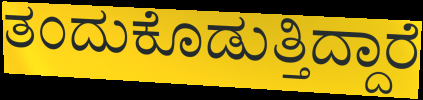
ತಂದುಕೊಡುತ್ತಿದ್ದಾರೆ